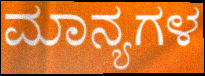
ಮಾನ್ಯಗಳ